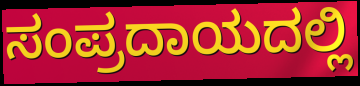
ಸಂಪ್ರದಾಯದಲ್ಲಿ